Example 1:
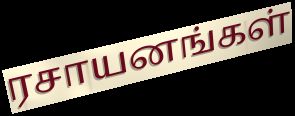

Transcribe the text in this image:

ரசாயனங்கள்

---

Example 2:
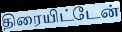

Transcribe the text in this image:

திரையிட்டேன்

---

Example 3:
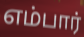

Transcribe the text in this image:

எம்பார்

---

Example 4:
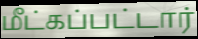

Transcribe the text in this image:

மீட்கப்பட்டார்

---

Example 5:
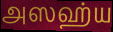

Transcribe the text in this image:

அஸஹ்ய